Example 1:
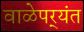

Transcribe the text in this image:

वाळेपर्यंत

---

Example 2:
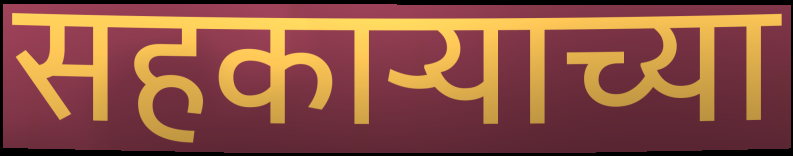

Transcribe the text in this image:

सहकार्‍याच्या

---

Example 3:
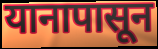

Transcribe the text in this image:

यानापासून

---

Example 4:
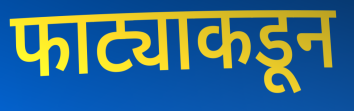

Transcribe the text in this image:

फाट्याकडून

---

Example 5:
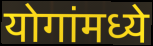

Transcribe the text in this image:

योगांमध्ये